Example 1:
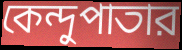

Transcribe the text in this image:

কেন্দুপাতার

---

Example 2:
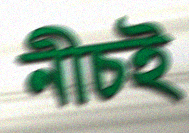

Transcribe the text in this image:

নীচই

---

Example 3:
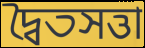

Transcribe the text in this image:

দ্বৈতসত্তা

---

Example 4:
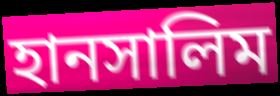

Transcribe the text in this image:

হানসালিম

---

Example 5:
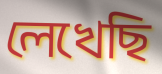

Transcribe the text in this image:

লেখেছি